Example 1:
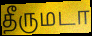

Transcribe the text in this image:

தீருமடா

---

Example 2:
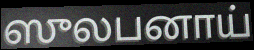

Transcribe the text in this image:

ஸுலபனாய்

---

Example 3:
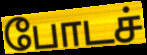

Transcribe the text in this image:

போடச்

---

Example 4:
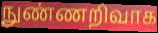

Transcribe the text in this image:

நுண்ணறிவாக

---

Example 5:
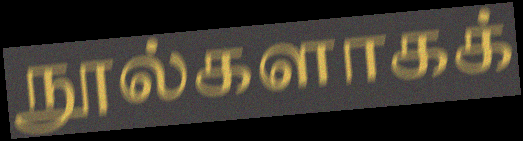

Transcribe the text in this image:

நூல்களாகக்